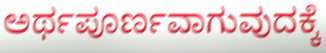
ಅರ್ಥಪೂರ್ಣವಾಗುವುದಕ್ಕೆ